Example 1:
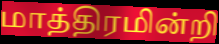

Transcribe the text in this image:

மாத்திரமின்றி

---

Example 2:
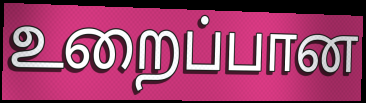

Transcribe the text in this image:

உறைப்பான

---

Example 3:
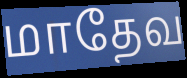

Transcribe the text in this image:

மாதேவ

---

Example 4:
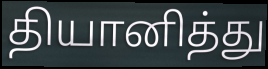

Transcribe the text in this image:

தியானித்து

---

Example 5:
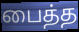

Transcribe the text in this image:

பைத்த